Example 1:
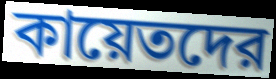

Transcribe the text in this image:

কায়েতদের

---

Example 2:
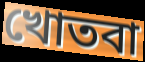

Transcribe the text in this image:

খোতবা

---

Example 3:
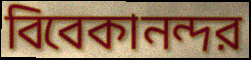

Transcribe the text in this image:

বিবেকানন্দর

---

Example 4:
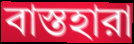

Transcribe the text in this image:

বাস্তহারা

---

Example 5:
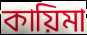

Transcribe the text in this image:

কায়িমা